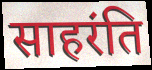
साहरंति